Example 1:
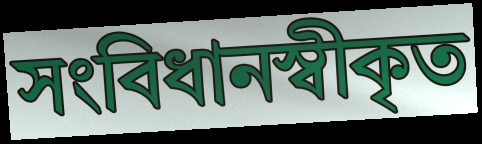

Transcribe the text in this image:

সংবিধানস্বীকৃত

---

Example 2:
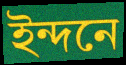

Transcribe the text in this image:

ইন্দনে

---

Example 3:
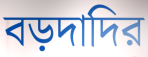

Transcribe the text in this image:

বড়দাদির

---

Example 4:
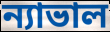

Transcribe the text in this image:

ন্যাভাল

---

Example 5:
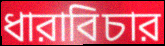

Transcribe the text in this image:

ধারাবিচার